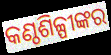
କଣ୍ଠଶିଳ୍ପୀଙ୍କର